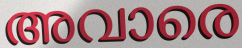
അവാരെ